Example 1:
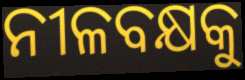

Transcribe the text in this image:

ନୀଳବକ୍ଷକୁ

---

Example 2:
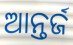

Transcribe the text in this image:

ଆନ୍ତର୍ଜ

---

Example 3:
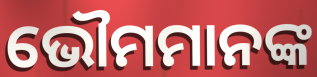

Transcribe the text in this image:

ଭୌମମାନଙ୍କ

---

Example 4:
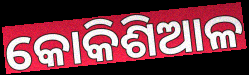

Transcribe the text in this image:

କୋକିଶିଆଳ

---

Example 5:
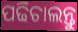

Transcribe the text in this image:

ପଢିଚାଲନ୍ତୁ